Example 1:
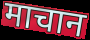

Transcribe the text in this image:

माचान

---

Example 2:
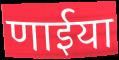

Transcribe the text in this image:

णाईया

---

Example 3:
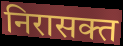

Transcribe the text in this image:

निरासक्त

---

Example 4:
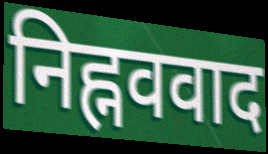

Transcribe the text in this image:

निह्नववाद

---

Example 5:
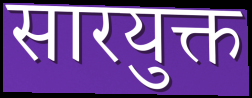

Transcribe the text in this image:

सारयुक्त